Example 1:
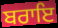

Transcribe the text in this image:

ਬਰਾਇ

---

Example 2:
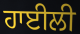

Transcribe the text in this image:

ਹਾਈਲੀ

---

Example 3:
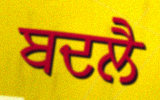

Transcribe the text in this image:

ਬਦਲੈ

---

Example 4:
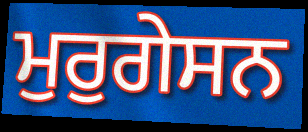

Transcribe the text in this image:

ਮੁਰੁਗੇਸਨ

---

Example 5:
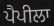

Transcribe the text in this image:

ਪੈਪੀਲਾ